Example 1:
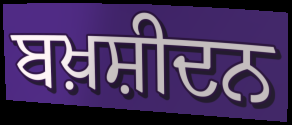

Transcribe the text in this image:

ਬਖ਼ਸ਼ੀਦਨ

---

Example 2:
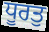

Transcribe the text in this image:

ਧੂਰਤੁ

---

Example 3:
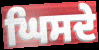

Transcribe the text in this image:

ਘਿਸਦੇ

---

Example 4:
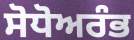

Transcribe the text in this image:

ਸੋਧੋਅਰੰਭ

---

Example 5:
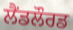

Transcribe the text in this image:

ਲੈਂਡਲੌਰਡ